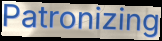
Patronizing